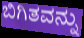
ಬಿಗಿತವನ್ನು